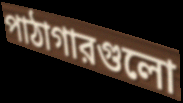
পাঠাগারগুলো